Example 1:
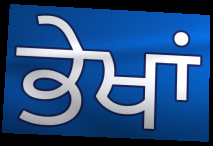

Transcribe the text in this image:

ਭੇਖਾਂ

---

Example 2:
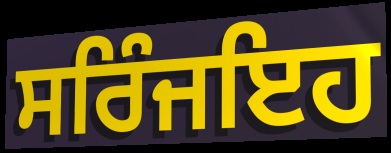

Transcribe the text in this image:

ਸਰਿੰਜਇਹ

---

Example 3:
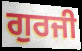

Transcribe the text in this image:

ਗੁਰਜੀ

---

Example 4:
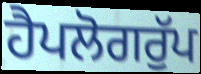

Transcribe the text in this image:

ਹੈਪਲੋਗਰੁੱਪ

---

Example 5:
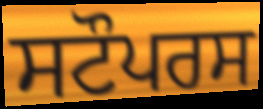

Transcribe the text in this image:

ਸਟੌਪਰਸ